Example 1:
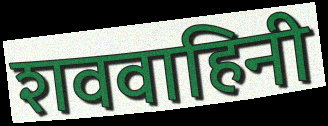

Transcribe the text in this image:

शववाहिनी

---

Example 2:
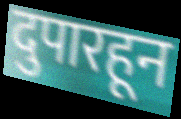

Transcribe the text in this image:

दुपारहून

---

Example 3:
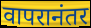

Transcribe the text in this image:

वापरानंतर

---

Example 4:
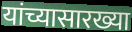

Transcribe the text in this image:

यांच्यासारख्या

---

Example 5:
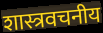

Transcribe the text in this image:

शास्त्रवचनीय